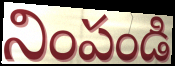
నింపండి